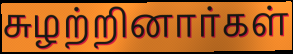
சுழற்றினார்கள்